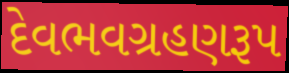
દેવભવગ્રહણરૂપ